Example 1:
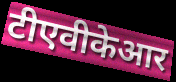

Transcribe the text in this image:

टीएवीकेआर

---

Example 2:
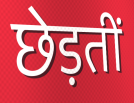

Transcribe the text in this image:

छेड़तीं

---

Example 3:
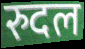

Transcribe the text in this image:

रुदल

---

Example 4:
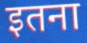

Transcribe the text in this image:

इतना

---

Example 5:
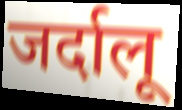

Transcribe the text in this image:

जर्दालू